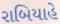
રાબિયાહે